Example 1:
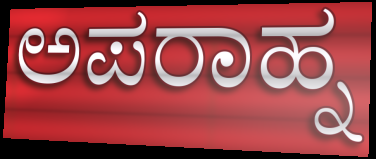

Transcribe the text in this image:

ಅಪರಾಹ್ನ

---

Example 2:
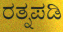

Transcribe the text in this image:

ರತ್ನಪಡಿ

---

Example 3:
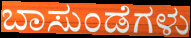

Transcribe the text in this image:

ಬಾಸುಂಡೆಗಳು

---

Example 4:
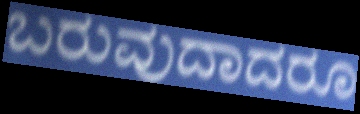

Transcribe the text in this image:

ಬರುವುದಾದರೂ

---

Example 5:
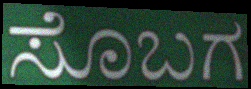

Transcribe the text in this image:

ಸೊಬಗ